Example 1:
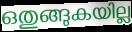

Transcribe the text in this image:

ഒതുങ്ങുകയില്ല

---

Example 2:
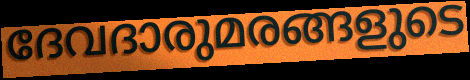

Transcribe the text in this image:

ദേവദാരുമരങ്ങളുടെ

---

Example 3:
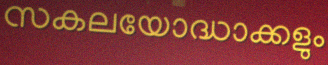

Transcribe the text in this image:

സകലയോദ്ധാക്കളും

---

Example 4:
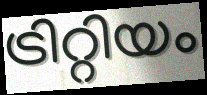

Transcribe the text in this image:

ട്രിറ്റിയം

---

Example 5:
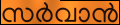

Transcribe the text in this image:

സർവാൻ